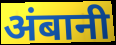
अंबानी